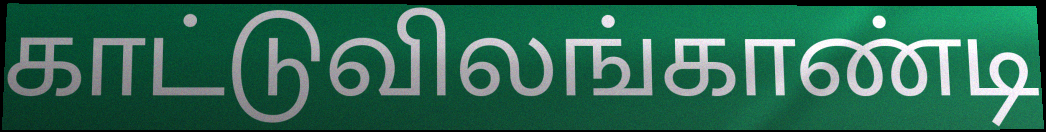
காட்டுவிலங்காண்டி